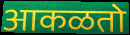
आकळतो